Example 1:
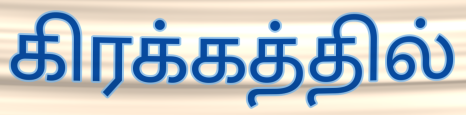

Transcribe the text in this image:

கிரக்கத்தில்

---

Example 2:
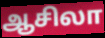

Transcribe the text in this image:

ஆசிலா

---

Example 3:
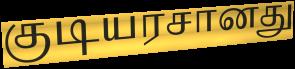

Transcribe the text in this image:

குடியரசானது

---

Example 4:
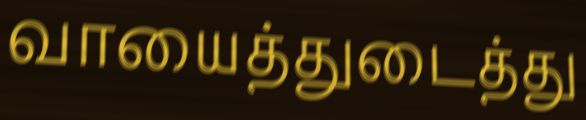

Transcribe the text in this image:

வாயைத்துடைத்து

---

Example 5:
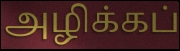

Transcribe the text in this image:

அழிக்கப்